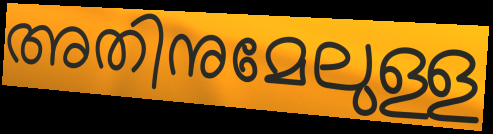
അതിനുമേലുള്ള